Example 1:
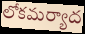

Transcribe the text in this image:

లోకమర్యాద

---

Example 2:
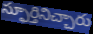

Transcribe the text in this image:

స్ఫూర్తినిచ్చారు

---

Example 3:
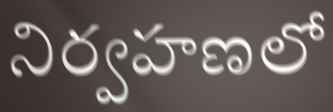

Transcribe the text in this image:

నిర్వహణలో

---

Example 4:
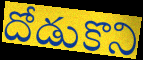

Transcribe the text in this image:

దోడుకొని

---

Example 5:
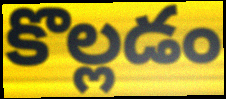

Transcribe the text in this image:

కొల్లడం